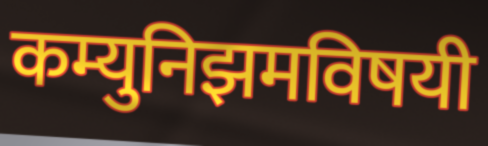
कम्युनिझमविषयी